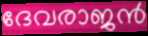
ദേവരാജൻ